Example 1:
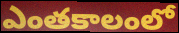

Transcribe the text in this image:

ఎంతకాలంలో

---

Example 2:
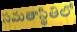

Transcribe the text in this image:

సమతాస్థితిలో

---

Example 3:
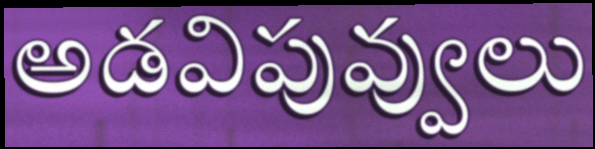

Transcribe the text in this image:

అడవిపువ్వులు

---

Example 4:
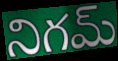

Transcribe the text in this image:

నిగమ్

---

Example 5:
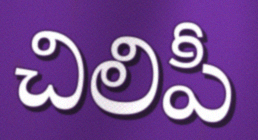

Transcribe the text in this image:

చిలిపీ